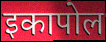
इकापोल